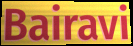
Bairavi